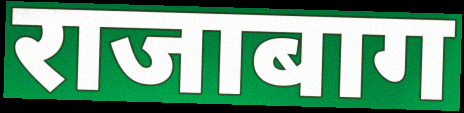
राजाबाग